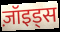
ज़ॉइड्स